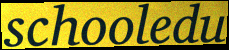
schooledu